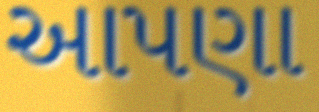
આપણા